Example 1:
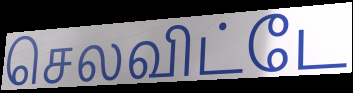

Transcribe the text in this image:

செலவிட்டே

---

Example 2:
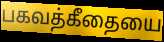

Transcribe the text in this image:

பகவத்கீதையை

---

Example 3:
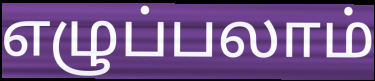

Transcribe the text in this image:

எழுப்பலாம்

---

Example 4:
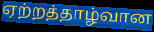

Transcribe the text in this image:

ஏற்றத்தாழ்வான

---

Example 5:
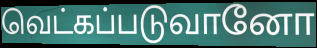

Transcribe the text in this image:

வெட்கப்படுவானோ